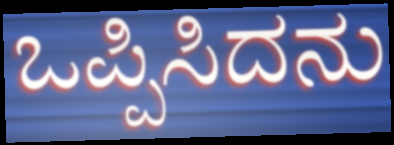
ಒಪ್ಪಿಸಿದನು